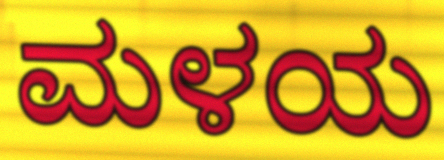
ಮಳಯ